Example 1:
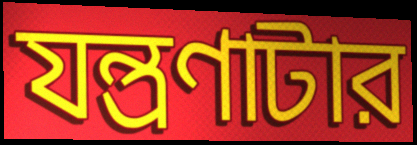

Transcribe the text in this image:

যন্ত্রণাটার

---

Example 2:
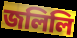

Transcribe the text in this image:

জলিলি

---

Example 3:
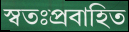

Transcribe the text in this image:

স্বতঃপ্রবাহিত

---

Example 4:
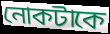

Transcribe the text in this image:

নোকটাকে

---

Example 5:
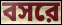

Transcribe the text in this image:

বসরে